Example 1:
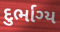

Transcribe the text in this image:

દુર્ભાગ્ય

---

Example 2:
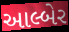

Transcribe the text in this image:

આલ્બેર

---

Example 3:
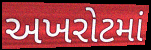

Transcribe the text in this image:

અખરોટમાં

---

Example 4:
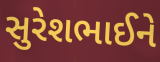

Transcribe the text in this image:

સુરેશભાઈને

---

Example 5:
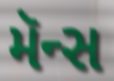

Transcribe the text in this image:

મૅન્સ